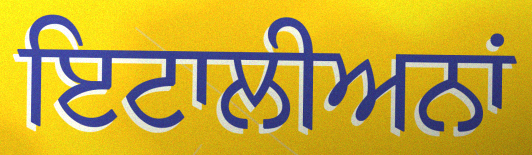
ਇਟਾਲੀਅਨਾਂ